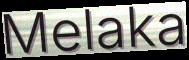
Melaka